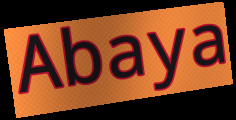
Abaya